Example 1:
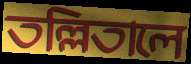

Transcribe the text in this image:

তল্লিতালে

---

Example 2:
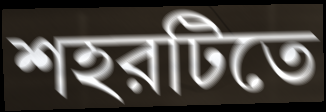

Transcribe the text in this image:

শহরটিতে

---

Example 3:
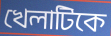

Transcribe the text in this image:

খেলাটিকে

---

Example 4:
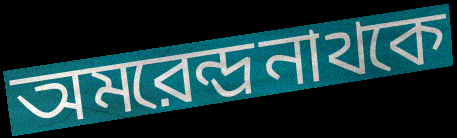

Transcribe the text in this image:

অমরেন্দ্রনাথকে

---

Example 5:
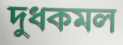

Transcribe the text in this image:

দুধকমল